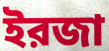
ইরজা